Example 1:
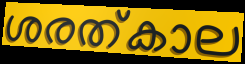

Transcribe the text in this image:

ശരത്കാല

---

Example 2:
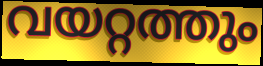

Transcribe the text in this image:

വയറ്റത്തും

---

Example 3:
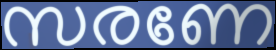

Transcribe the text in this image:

സരണേ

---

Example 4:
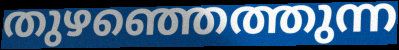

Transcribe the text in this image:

തുഴഞ്ഞെത്തുന്ന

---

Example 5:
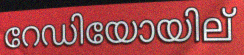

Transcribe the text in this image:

റേഡിയോയില്